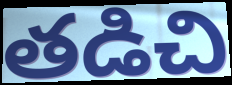
తడిచి